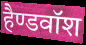
हैण्डवॉश